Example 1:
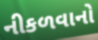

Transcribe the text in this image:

નીકળવાનો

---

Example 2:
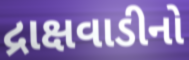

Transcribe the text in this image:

દ્રાક્ષવાડીનો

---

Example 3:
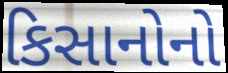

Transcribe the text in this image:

કિસાનોનો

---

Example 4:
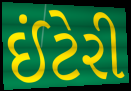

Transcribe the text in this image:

ઈંટેરી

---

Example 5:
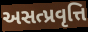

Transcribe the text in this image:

અસત્પ્રવૃત્તિ